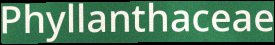
Phyllanthaceae